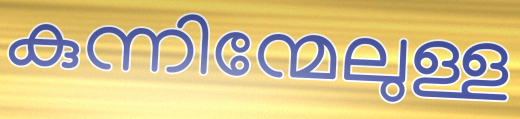
കുന്നിന്മേലുള്ള